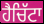
ਹੈਚਿੱਟਾ